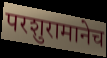
परशुरामानेच